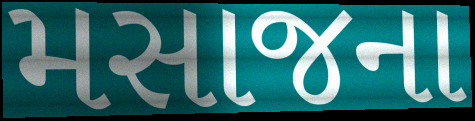
મસાજના